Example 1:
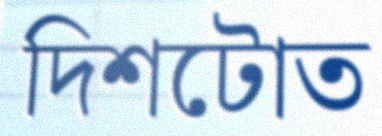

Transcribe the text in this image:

দিশটোত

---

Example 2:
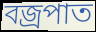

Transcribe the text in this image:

বজ্ৰপাত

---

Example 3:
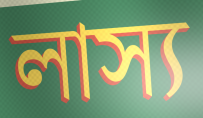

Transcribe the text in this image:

লাস্য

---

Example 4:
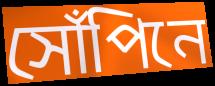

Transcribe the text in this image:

সোঁপিনে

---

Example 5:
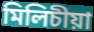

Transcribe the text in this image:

মিলিচীয়া